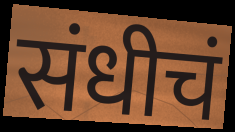
संधीचं